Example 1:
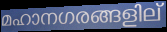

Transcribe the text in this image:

മഹാനഗരങ്ങളില്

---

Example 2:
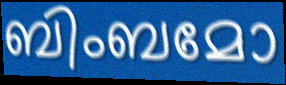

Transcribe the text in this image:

ബിംബമോ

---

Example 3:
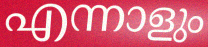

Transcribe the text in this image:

എന്നാളും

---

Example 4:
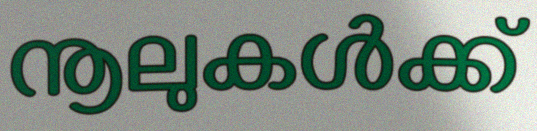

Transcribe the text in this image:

നൂലുകൾക്ക്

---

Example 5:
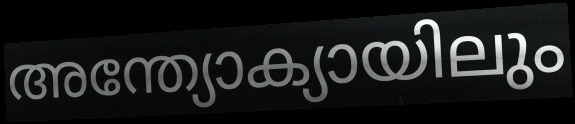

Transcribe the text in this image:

അന്ത്യോക്യായിലും